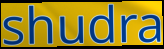
shudra